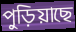
পুড়িয়াছে